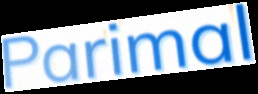
Parimal